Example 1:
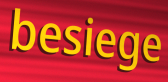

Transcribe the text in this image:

besiege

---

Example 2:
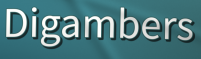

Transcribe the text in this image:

Digambers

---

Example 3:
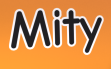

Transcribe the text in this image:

Mity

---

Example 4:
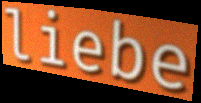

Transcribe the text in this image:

liebe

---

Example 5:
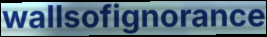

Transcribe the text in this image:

wallsofignorance